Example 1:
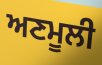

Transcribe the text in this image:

ਅਣਮੂਲੀ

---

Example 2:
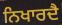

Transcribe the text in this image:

ਨਿਖਾਰਦੈ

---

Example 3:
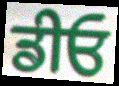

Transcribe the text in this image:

ਡੀਓ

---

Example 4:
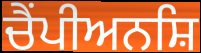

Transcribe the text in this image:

ਚੈਂਪੀਅਨਸ਼ਿ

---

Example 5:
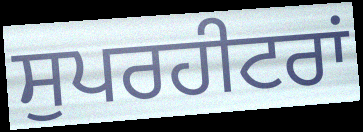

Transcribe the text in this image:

ਸੁਪਰਹੀਟਰਾਂ